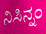
ನಿಸಿನ್ನಂ